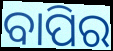
ବାପିର